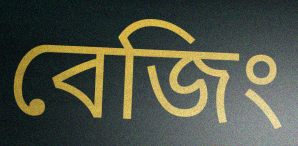
বেজিং